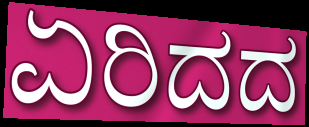
ಏರಿದದ